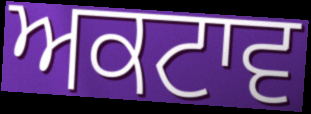
ਅਕਟਾਵ